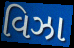
વિઝા